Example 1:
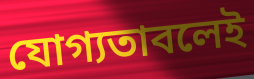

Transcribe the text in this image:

যোগ্যতাবলেই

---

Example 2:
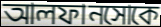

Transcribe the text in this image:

আলফানসোকে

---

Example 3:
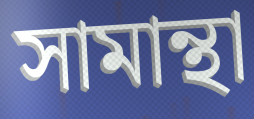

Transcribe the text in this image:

সামান্থা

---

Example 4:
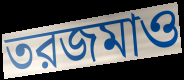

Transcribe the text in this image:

তরজমাও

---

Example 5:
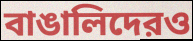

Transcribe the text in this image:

বাঙালিদেরও